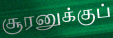
சூரனுக்குப்